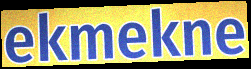
ekmekne